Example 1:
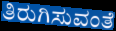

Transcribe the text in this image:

ತಿರುಗಿಸುವಂತೆ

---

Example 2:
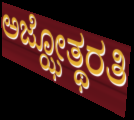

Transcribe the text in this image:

ಅಜ್ಝೋತ್ಥರತಿ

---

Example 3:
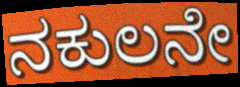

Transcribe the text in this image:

ನಕುಲನೇ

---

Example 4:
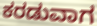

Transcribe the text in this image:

ಕರಡುವಾಗ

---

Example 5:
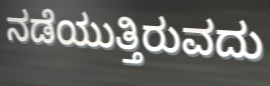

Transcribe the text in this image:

ನಡೆಯುತ್ತಿರುವದು